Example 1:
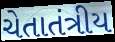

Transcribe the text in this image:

ચેતાતંત્રીય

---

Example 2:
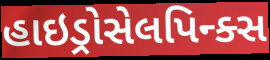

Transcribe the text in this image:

હાઇડ્રોસેલપિન્ક્સ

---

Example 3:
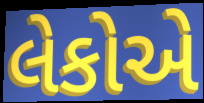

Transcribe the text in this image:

લેકોએ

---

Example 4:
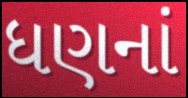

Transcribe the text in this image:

ધણનાં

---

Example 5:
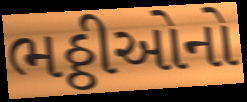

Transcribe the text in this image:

ભઠ્ઠીઓનો